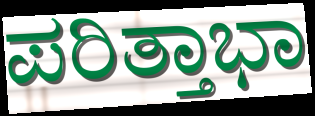
ಪರಿತ್ತಾಭಾ